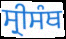
ਸ੍ਰੀਸੰਥ